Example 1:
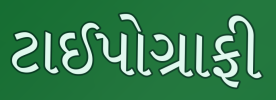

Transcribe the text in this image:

ટાઈપોગ્રાફી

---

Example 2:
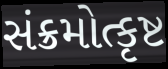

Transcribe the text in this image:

સંક્રમોત્કૃષ્ટ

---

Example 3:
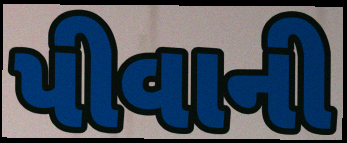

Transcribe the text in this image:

પીવાની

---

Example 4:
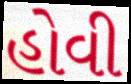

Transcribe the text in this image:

હોવી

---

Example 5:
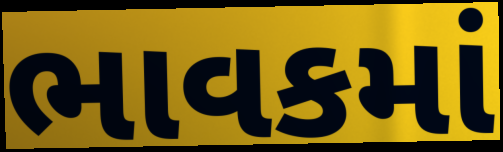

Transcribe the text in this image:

ભાવકમાં